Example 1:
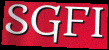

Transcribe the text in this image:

SGFI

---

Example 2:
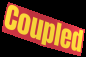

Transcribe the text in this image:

Coupled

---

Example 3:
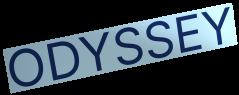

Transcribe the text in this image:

ODYSSEY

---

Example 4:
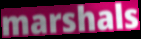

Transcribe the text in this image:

marshals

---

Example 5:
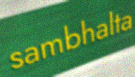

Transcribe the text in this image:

sambhalta